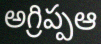
అగ్రిప్పఆ